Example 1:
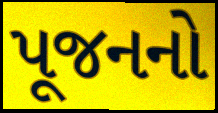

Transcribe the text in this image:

પૂજનનો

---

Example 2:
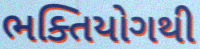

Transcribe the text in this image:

ભક્તિયોગથી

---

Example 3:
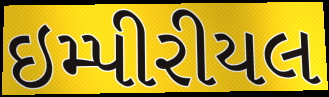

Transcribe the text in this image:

ઇમ્પીરીયલ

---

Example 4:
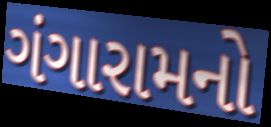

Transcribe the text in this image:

ગંગારામનો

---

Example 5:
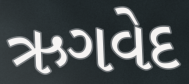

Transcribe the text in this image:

ઋગવેદ